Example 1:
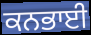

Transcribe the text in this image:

ਕਨਭਾਈ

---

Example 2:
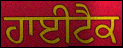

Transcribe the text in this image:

ਹਾਈਟੈਕ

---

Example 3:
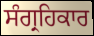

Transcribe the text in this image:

ਸੰਗ੍ਰਹਿਕਾਰ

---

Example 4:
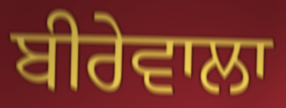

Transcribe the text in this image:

ਬੀਰੇਵਾਲਾ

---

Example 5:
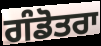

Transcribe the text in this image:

ਗੰਡੋਤਰਾ